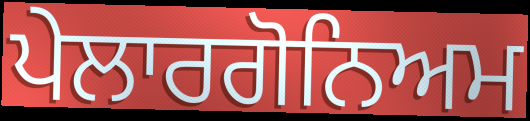
ਪੇਲਾਰਗੋਨਿਅਮ